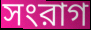
সংরাগ